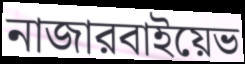
নাজারবাইয়েভ